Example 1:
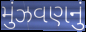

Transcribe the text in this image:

મુંઝવણનું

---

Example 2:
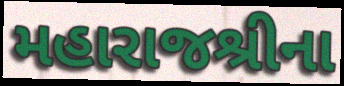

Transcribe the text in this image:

મહારાજશ્રીના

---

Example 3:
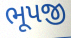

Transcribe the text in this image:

ભૂપજી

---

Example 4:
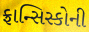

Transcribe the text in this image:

ફ્રાન્સિસ્કોની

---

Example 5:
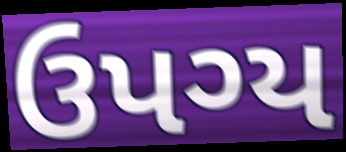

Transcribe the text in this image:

ઉપગ્ય